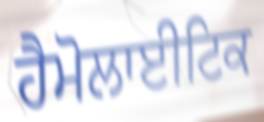
ਹੈਮੋਲਾਈਟਿਕ